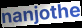
nanjothe